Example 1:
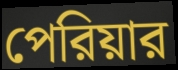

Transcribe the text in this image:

পেরিয়ার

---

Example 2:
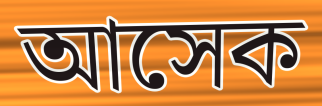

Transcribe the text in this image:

আসেক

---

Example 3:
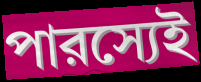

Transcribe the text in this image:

পারস্যেই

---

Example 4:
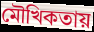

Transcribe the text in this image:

মৌখিকতায়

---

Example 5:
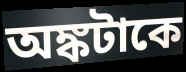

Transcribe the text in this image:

অঙ্কটাকে